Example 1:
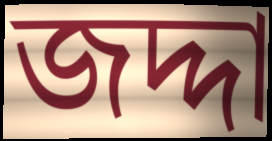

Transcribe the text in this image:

জদ্দা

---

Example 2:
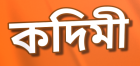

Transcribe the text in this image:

কদিমী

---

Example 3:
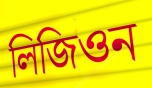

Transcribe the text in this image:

লিজিওন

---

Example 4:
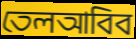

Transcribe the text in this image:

তেলআবিব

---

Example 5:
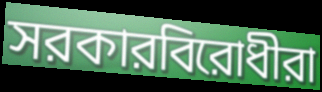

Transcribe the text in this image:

সরকারবিরোধীরা